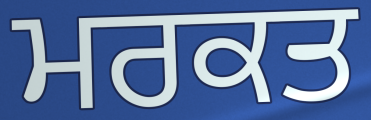
ਮਰਕਤ